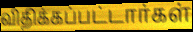
விதிக்கப்பட்டார்கள்